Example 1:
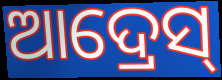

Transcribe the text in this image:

ଆଦ୍ରେସ୍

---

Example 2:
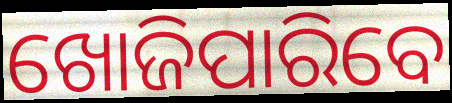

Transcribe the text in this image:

ଖୋଜିପାରିବେ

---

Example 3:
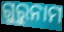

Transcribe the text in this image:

ଗୁରୁନାମ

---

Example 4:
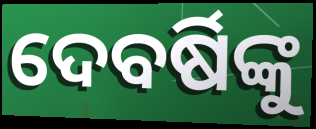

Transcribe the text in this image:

ଦେବର୍ଷିଙ୍କୁ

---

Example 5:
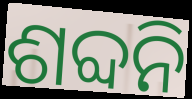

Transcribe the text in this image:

ଶବ୍ଦନି